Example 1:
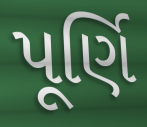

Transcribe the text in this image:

પૂર્ણિ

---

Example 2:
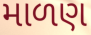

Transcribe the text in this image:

માળણ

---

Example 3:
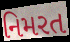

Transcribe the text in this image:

નિમરત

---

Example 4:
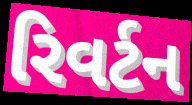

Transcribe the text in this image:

રિવર્ટન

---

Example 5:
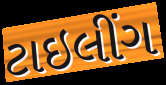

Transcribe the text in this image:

ટાઇલીંગ